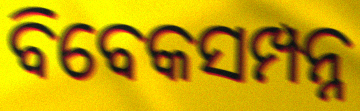
ବିବେକସମ୍ପନ୍ନ